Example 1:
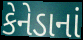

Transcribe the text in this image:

કેનેડાનાં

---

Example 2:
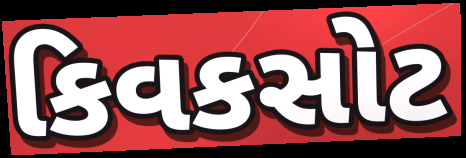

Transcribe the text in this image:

કિવકસોટ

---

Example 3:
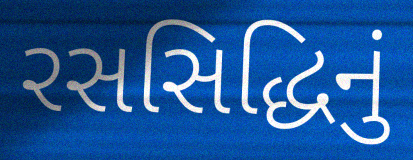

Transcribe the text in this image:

રસસિદ્ધિનું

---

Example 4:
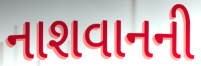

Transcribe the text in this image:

નાશવાનની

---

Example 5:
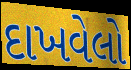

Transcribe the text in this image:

દાખવેલો